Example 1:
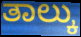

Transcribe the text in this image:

ತಾಲ್ಕು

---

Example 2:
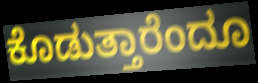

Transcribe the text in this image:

ಕೊಡುತ್ತಾರೆಂದೂ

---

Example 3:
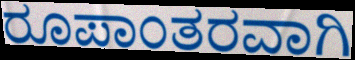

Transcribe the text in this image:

ರೂಪಾಂತರವಾಗಿ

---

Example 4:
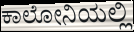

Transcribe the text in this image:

ಕಾಲೋನಿಯಲ್ಲಿ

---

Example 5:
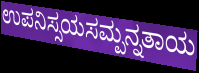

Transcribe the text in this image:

ಉಪನಿಸ್ಸಯಸಮ್ಪನ್ನತಾಯ